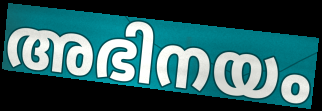
അഭിനയം